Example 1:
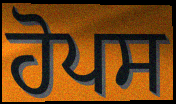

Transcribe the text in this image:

ਹੋਪਸ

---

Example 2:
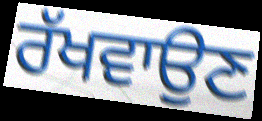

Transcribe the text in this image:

ਰੱਖਵਾਉਣ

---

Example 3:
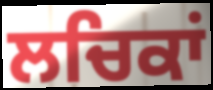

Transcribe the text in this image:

ਲਚਿਕਾਂ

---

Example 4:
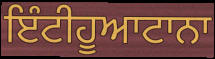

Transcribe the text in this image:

ਇੰਟੀਹੂਆਟਾਨਾ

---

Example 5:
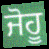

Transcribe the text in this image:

ਜੋਹੂ